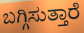
ಬಗ್ಗಿಸುತ್ತಾರೆ